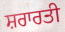
ਸ਼ਰਾਰਤੀ